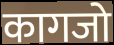
कागजो